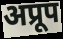
अप्रूप